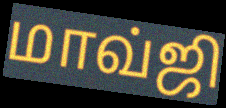
மாவ்ஜி